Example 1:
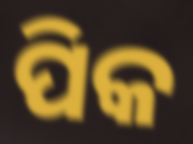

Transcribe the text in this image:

ପିକ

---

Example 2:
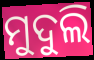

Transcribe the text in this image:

ମୁଦୁଲି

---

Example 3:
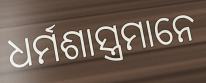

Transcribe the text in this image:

ଧର୍ମଶାସ୍ତ୍ରମାନେ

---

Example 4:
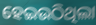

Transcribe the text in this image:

ହେଇଉଠିଥିଲା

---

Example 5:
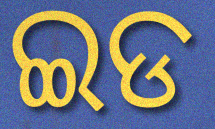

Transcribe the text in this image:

ଇଡ